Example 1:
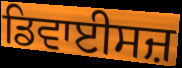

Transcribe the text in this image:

ਡਿਵਾਈਸਜ਼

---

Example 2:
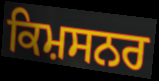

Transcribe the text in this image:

ਕਿਮ਼ਸਨਰ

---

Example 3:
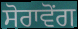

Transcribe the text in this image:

ਸੋਰਾਵੋਂਗ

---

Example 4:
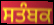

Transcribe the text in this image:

ਸਤੰਬਕ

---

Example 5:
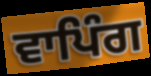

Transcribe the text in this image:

ਵਾਪਿੰਗ